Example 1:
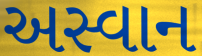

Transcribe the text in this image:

અસ્વાન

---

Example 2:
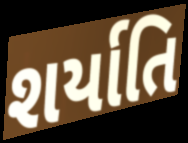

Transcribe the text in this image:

શર્યાતિ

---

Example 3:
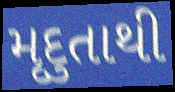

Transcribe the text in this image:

મૃદુતાથી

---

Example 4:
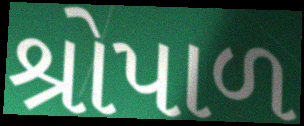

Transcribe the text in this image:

શ્રોપાળ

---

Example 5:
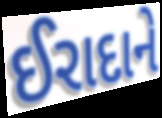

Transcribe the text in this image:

ઈરાદાને